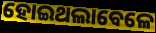
ହୋଇଥଲାବେଳେ